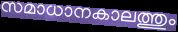
സമാധാനകാലത്തും